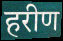
हरीण